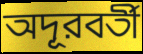
অদূরবর্তী